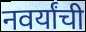
नवर्यांची